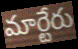
మార్టేరు